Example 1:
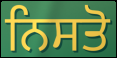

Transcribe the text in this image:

ਨਿਸਤੋ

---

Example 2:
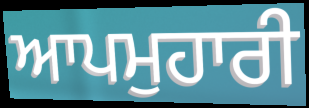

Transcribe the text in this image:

ਆਪਮੁਹਾਰੀ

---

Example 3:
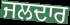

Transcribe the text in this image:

ਜਲਦਾਰ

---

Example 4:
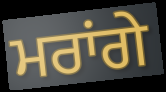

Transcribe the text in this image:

ਮਰਾਂਗੇ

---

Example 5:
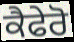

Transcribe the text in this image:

ਕੈਫੇਰੋ